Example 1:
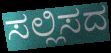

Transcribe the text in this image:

ಸಲ್ಲಿಸದ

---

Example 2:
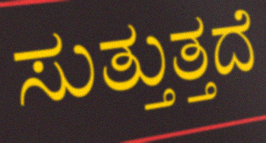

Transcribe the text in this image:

ಸುತ್ತುತ್ತದೆ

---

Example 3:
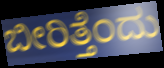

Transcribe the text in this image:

ಬೀರಿತ್ತೆಂದು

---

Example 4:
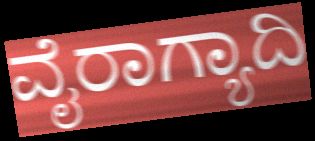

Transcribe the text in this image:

ವೈರಾಗ್ಯಾದಿ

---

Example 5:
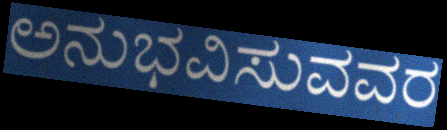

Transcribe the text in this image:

ಅನುಭವಿಸುವವರ